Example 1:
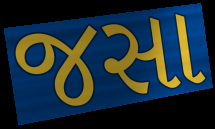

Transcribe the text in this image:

જસા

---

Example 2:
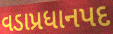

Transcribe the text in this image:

વડાપ્રધાનપદ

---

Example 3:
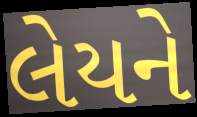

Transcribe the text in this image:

લેયને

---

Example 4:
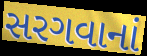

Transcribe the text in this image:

સરગવાનાં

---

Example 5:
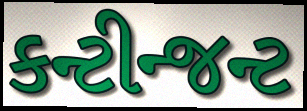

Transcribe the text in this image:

કન્ટીન્જન્ટ